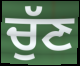
ਚੁੱਣ